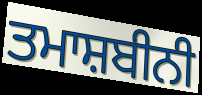
ਤਮਾਸ਼ਬੀਨੀ